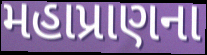
મહાપ્રાણના